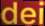
dei